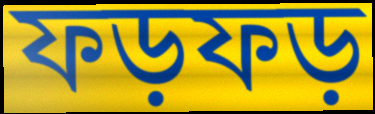
ফড়ফড়